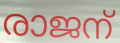
രാജന്